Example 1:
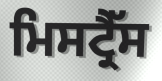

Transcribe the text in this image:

ਮਿਸਟ੍ਰੈੱਸ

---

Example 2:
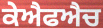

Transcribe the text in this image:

ਕੇਐਫਐਚ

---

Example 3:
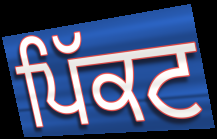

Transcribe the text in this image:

ਪਿੱਕਟ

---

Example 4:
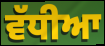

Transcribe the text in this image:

ਵੱਧੀਆ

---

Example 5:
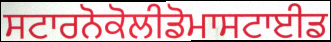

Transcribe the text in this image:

ਸਟਾਰਨੋਕੋਲੀਡੋਮਾਸਟਾਈਡ